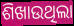
ଶିଖାଉଥିଲା